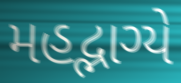
મહદ્ભાગ્યે